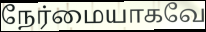
நேர்மையாகவே